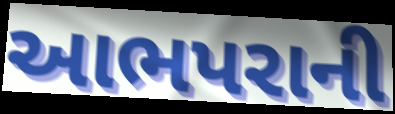
આભપરાની